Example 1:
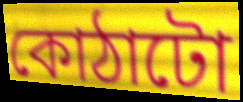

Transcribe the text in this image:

কোঠাটো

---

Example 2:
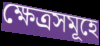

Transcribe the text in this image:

ক্ষেত্ৰসমূহে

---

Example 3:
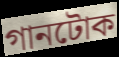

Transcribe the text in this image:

গানটোক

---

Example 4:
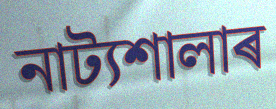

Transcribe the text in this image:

নাট্যশালাৰ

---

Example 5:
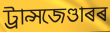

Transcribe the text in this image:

ট্ৰান্সজেণ্ডাৰৰ